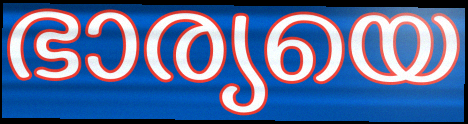
ഭാര്യയെ